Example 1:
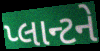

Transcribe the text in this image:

પ્લાન્ટને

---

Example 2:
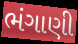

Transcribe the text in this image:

ભંગાણી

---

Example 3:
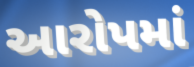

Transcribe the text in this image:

આરોપમાં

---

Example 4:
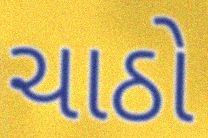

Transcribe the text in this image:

ચાઠો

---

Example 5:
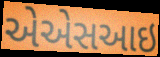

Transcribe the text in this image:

એએસઆઇ